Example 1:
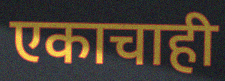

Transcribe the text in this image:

एकाचाही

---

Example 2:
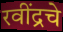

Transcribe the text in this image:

रवींद्रचे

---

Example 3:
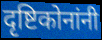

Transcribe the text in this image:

दृष्टिकोनांनी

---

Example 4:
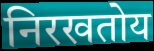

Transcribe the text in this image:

निरखतोय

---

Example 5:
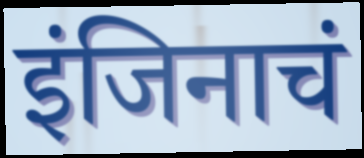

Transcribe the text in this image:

इंजिनाचं